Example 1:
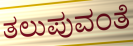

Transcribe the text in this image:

ತಲುಪುವಂತೆ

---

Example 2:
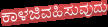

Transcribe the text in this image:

ಕಾಳಜಿವಹಿಸುವುದು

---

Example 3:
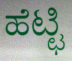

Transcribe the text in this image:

ಹೆಟ್ಟಿ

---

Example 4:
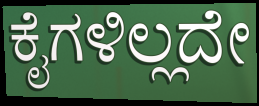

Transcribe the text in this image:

ಕೈಗಳಿಲ್ಲದೇ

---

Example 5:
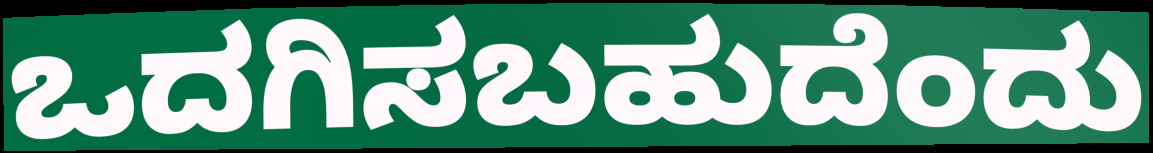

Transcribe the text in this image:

ಒದಗಿಸಬಹುದೆಂದು